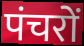
पंचरों